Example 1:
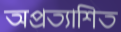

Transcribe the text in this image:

অপ্রত্যাশিত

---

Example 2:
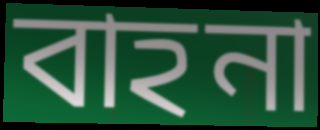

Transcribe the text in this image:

বাহনা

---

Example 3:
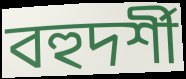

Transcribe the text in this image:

বহুদর্শী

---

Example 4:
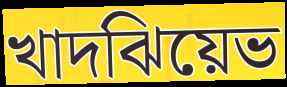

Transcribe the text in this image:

খাদঝিয়েভ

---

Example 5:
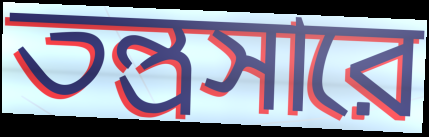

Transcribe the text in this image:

তন্ত্রসারে